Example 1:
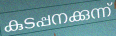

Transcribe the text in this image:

കുടപ്പനക്കുന്ന്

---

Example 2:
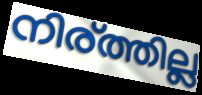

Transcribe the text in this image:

നിര്ത്തില്ല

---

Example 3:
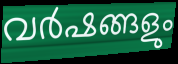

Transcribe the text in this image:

വർഷങ്ങളും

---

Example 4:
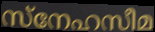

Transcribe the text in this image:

സ്നേഹസീമ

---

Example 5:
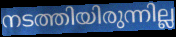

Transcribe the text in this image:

നടത്തിയിരുന്നില്ല